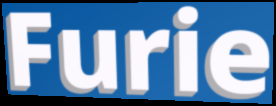
Furie